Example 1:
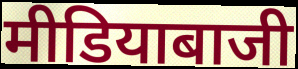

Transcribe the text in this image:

मीडियाबाजी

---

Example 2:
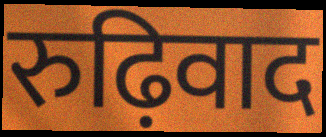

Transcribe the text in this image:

रुढ़िवाद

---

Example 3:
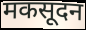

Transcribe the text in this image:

मकसूदन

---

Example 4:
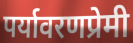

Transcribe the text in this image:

पर्यावरणप्रेमी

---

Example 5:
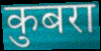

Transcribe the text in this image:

कुबरा